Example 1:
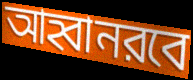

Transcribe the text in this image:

আহ্বানরবে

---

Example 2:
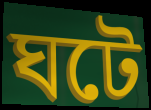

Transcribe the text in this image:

ঘটে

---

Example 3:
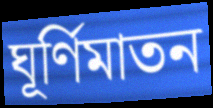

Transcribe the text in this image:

ঘূর্ণিমাতন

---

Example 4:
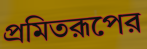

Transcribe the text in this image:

প্রমিতরূপের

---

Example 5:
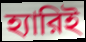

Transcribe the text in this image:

হ্যারিই